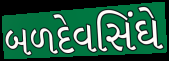
બળદેવસિંઘે